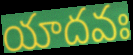
యాదవః